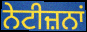
ਨੇਟੀਜ਼ਨਾਂ